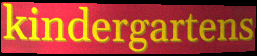
kindergartens